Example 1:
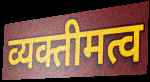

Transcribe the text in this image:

व्यक्तीमत्व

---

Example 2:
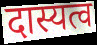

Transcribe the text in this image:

दास्यत्व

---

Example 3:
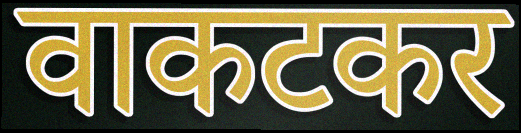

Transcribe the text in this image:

वाकटकर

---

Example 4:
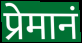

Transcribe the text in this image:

प्रेमानं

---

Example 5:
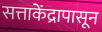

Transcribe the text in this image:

सत्ताकेंद्रापासून